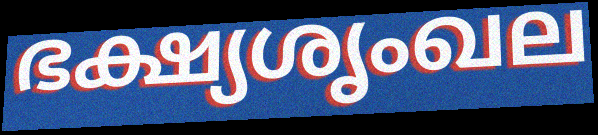
ഭക്ഷ്യശൃംഖല